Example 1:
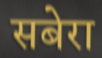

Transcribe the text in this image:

सबेरा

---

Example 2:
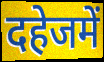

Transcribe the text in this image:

दहेजमें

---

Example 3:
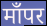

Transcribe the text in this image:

माँपर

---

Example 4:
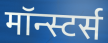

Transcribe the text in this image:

मॉन्स्टर्स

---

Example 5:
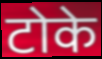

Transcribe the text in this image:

टोके